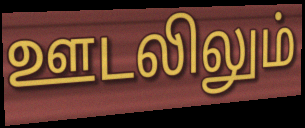
ஊடலிலும்